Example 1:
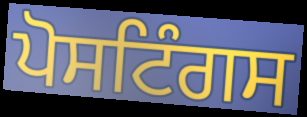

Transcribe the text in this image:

ਪੋਸਟਿੰਗਸ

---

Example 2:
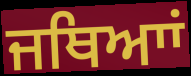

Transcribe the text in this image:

ਜਥਿਆਾਂ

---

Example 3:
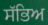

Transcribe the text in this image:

ਸੱਭਿਅ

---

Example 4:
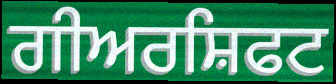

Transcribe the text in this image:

ਗੀਅਰਸ਼ਿਫਟ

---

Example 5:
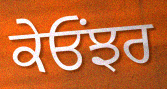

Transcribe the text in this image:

ਕੇਓਂਝਰ